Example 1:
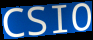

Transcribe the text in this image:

CSIO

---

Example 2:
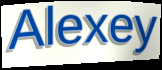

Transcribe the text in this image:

Alexey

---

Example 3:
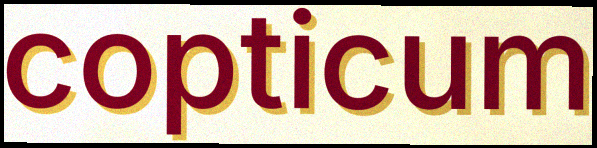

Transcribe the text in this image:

copticum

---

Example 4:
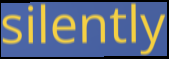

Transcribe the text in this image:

silently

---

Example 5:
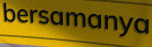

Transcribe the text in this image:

bersamanya